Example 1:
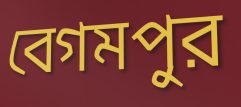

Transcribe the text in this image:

বেগমপুর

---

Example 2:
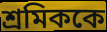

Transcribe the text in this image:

শ্রমিককে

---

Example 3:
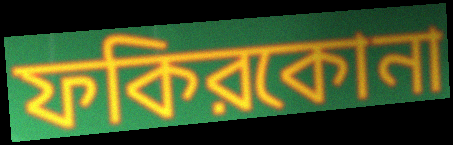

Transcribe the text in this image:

ফকিরকোনা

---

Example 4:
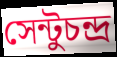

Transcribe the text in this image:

সেন্টুচন্দ্র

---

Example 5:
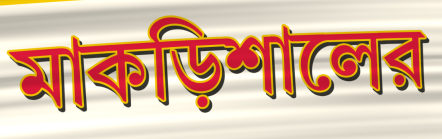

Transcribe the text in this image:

মাকড়িশালের